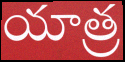
యాత్ర